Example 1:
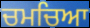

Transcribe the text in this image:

ਚਮਚਿਆ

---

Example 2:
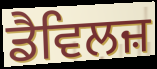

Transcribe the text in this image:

ਡੈਵਿਲਜ਼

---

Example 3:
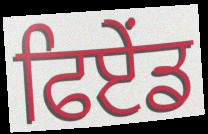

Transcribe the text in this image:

ਫਿਏਂਡ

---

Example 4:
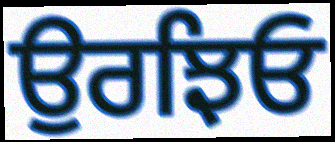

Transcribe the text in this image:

ਉਰਝਿਓ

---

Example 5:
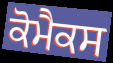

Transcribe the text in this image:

ਕੋਮੈਕਸ